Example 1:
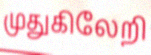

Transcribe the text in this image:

முதுகிலேறி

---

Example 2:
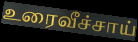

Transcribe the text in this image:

உரைவீச்சாய்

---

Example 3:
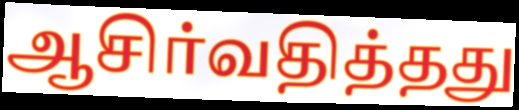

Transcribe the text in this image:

ஆசிர்வதித்தது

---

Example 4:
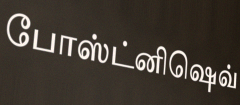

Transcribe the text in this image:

போஸ்ட்னிஷெவ்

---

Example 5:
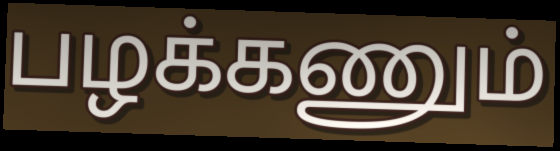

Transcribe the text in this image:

பழக்கணும்